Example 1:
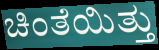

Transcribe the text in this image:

ಚಿಂತೆಯಿತ್ತು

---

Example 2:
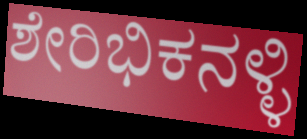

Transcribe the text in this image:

ಶೇರಿಭಿಕನಳ್ಳಿ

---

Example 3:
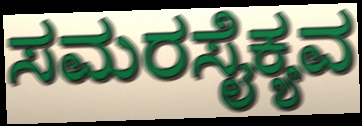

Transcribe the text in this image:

ಸಮರಸೈಕ್ಯವ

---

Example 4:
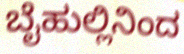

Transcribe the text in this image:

ಬೈಹುಲ್ಲಿನಿಂದ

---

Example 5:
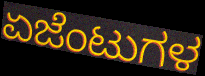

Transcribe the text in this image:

ಏಜೆಂಟುಗಳ